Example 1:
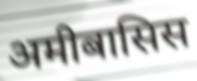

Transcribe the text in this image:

अमीबासिस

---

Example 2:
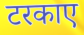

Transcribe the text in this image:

टरकाए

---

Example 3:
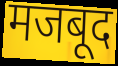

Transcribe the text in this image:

मजबूद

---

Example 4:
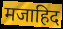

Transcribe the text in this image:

मजाहिद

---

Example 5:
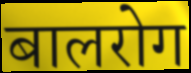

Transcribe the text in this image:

बालरोग